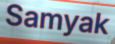
Samyak